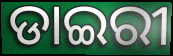
ଡାଇରୀ